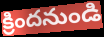
క్రిందనుండి